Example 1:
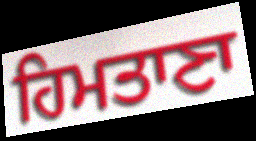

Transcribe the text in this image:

ਹਿਮਤਾਣਾ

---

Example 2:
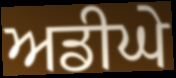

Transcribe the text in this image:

ਅਡੀਘੇ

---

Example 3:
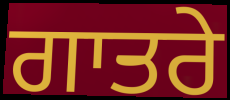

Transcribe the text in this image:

ਗਾਤਰੇ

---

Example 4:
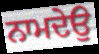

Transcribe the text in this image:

ਨਾਮਦੇਉ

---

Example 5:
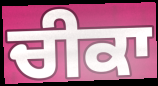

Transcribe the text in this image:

ਚੀਕਾ